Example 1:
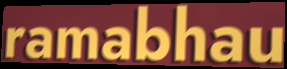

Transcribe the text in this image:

ramabhau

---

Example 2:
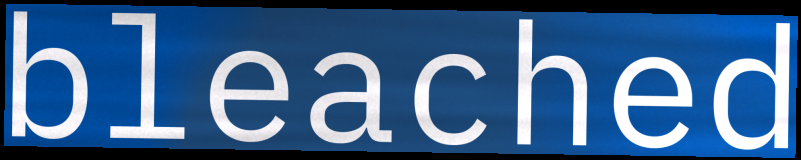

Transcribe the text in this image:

bleached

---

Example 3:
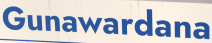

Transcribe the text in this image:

Gunawardana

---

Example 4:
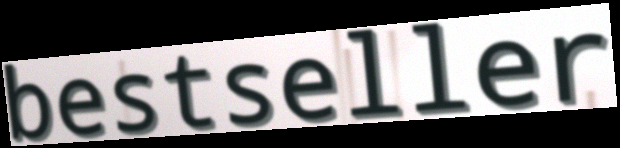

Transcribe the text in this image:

bestseller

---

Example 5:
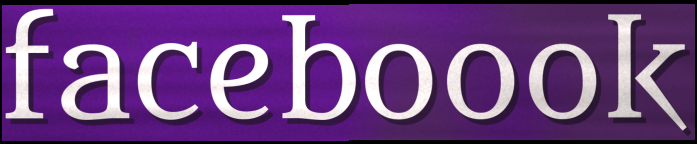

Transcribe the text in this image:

faceboook